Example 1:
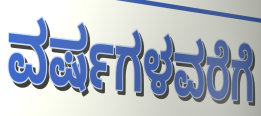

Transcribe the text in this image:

ವರ್ಷಗಳವರೆಗೆ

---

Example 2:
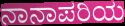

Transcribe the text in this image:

ನಾನಾಪರಿಯ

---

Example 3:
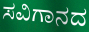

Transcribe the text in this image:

ಸವಿಗಾನದ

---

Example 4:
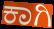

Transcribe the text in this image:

ಕಾಗಿ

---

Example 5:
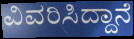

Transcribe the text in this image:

ವಿವರಿಸಿದ್ದಾನೆ